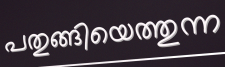
പതുങ്ങിയെത്തുന്ന